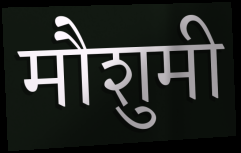
मौशुमी